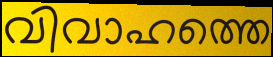
വിവാഹത്തെ